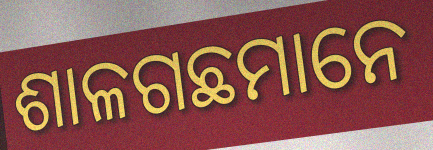
ଶାଳଗଛମାନେ